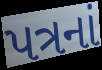
પત્રનાં